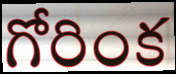
గోరింక